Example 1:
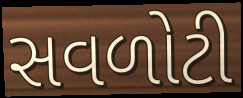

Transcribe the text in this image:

સવળોટી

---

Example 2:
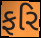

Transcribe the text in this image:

ફરિ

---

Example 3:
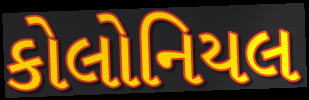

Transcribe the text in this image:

કોલોનિયલ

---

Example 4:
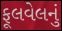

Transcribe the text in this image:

ફૂલવેલનું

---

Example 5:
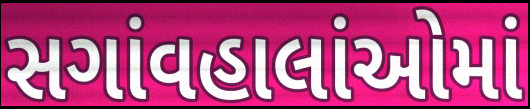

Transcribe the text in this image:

સગાંવહાલાંઓમાં